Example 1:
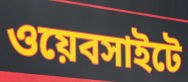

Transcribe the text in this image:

ওয়েবসাইটে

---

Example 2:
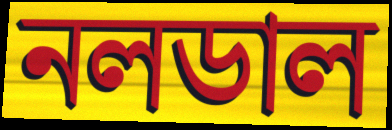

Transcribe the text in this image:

নলডাল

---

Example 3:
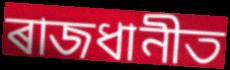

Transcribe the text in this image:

ৰাজধানীত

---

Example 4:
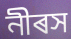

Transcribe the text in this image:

নীৰস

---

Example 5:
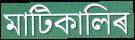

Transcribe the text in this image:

মাটিকালিৰ